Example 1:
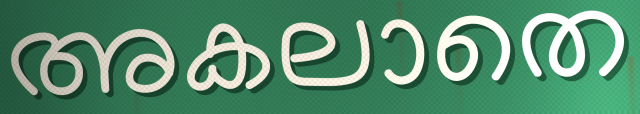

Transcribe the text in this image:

അകലാതെ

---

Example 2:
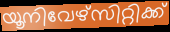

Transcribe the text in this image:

യൂനിവേഴ്സിറ്റിക്ക്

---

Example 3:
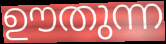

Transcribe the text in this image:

ഊതുന്ന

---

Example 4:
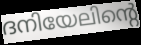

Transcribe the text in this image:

ദനിയേലിന്റെ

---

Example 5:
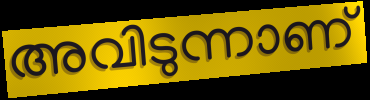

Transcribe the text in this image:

അവിടുന്നാണ്